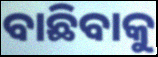
ବାଛିବାକୁ